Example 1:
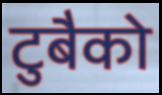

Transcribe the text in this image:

टुबैको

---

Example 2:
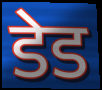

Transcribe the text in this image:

डेड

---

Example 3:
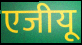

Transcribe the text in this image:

एजीयू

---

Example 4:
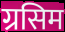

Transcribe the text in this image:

ग्रसिम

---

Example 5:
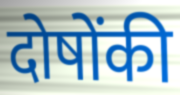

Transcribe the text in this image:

दोषोंकी